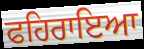
ਫਹਿਰਾਇਆ